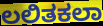
ಲಲಿತಕಲಾ